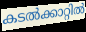
കടൽക്കാറ്റിൽ